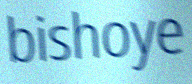
bishoye